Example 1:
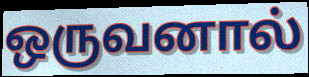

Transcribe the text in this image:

ஒருவனால்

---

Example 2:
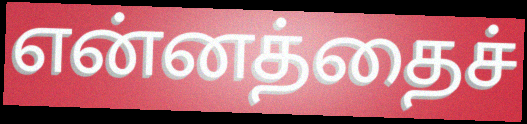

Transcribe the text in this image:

என்னத்தைச்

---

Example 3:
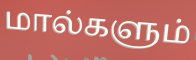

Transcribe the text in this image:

மால்களும்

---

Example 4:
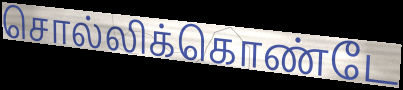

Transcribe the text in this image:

சொல்லிக்கொண்டே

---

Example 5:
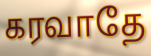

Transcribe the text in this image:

கரவாதே